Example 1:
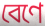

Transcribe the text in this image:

বেণে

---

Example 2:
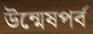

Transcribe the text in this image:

উন্মেষপর্ব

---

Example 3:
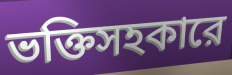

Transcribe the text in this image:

ভক্তিসহকারে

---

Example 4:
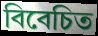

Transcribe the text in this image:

বিবেচিত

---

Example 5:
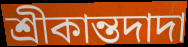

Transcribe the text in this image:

শ্রীকান্তদাদা